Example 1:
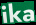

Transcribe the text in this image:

ika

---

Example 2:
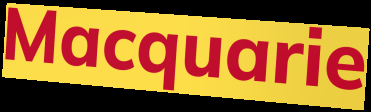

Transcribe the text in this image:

Macquarie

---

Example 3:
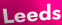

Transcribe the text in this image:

Leeds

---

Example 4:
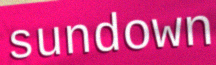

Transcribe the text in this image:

sundown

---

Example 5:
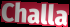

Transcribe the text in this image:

Challa